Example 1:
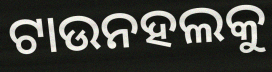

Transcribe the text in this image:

ଟାଉନହଲକୁ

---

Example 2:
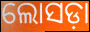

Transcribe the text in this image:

ଲୋସଡ଼ା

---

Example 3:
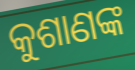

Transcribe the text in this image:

କୁଶାଣଙ୍କ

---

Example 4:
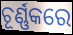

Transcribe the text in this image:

ଚୂର୍ଣ୍ଣକରେ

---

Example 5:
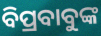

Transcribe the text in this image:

ବିପ୍ରବାବୁଙ୍କ